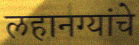
लहानग्यांचे